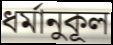
ধর্মানুকূল